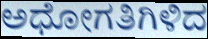
ಅಧೋಗತಿಗಿಳಿದ